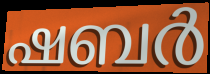
ഷബർ